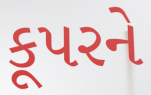
કૂપરને